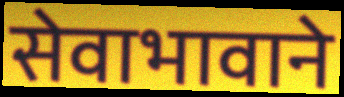
सेवाभावाने